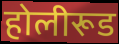
होलीरूड